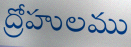
ద్రోహులము